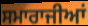
ਸਮਾਰਾਜੀਆਂ